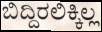
ಬಿದ್ದಿರಲಿಕ್ಕಿಲ್ಲ